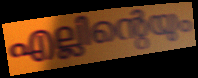
എല്ലിന്റെയും